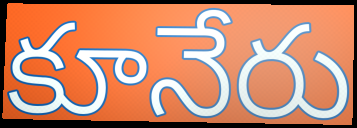
కూనేరు